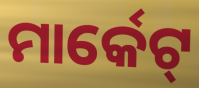
ମାର୍କେଟ୍